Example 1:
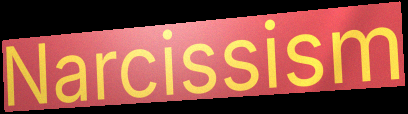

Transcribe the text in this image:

Narcissism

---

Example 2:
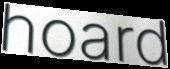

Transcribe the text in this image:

hoard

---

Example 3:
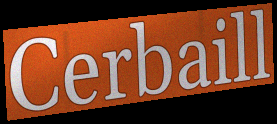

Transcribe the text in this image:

Cerbaill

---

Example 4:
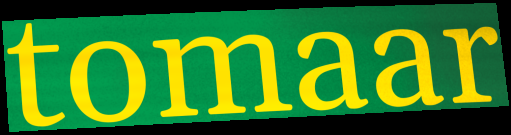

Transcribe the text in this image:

tomaar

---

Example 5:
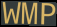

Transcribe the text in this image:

WMP